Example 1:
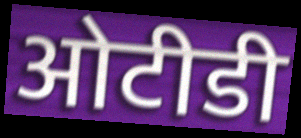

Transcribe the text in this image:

ओटीडी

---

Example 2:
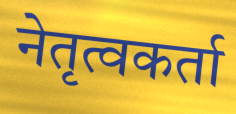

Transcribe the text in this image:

नेतृत्‍वकर्ता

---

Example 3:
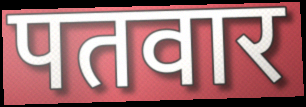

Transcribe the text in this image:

पतवार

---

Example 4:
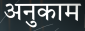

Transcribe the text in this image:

अनुकाम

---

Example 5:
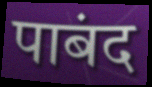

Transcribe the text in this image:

पाबंद